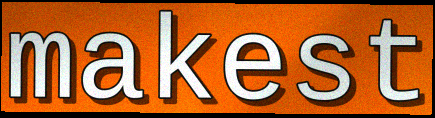
makest